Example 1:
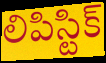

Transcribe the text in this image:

లిపిస్టిక్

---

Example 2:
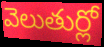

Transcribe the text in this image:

వెలుతుర్లో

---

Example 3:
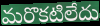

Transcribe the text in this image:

మరొకటిలేదు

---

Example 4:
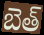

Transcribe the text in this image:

బెత్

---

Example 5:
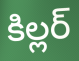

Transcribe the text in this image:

కిల్లర్